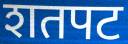
शतपट